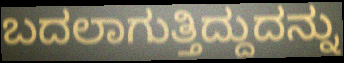
ಬದಲಾಗುತ್ತಿದ್ದುದನ್ನು